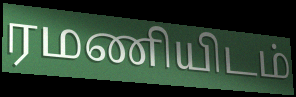
ரமணியிடம்